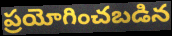
ప్రయోగించబడిన